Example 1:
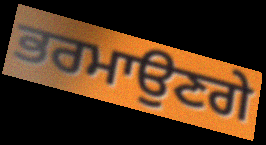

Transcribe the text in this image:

ਭਰਮਾਉਣਗੇ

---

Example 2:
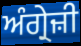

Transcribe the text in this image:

ਅੰਗ੍ਰੇਜ਼ੀ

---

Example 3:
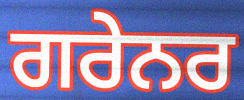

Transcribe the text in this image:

ਗਰੇਨਰ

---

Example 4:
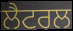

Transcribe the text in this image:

ਲੈਟਰਲ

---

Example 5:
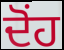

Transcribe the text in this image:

ਦੋਂਹ